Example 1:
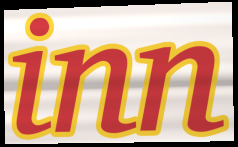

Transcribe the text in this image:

inn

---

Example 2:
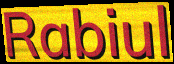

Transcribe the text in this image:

Rabiul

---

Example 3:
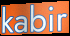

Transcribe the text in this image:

kabir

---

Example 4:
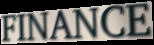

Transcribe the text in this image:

FINANCE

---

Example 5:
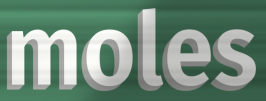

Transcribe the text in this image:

moles